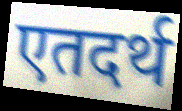
एतदर्थ